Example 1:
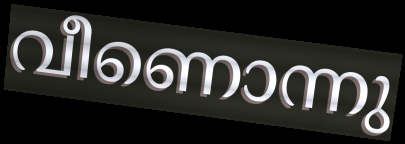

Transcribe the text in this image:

വീണൊന്നു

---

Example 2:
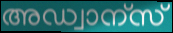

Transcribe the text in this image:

അഡ്വാന്സ്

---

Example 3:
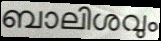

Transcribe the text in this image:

ബാലിശവും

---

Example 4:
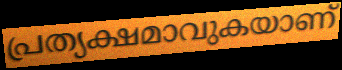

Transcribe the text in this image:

പ്രത്യക്ഷമാവുകയാണ്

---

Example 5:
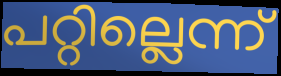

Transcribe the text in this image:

പറ്റില്ലെന്ന്